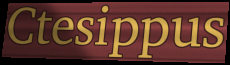
Ctesippus